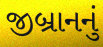
જીબ્રાનનું